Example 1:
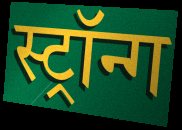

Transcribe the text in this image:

स्ट्रॉन्ग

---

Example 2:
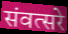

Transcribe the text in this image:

संवत्सरे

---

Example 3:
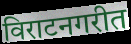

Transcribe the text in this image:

विराटनगरीत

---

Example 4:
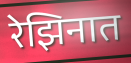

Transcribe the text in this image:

रेझिनात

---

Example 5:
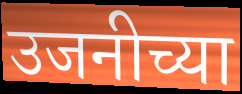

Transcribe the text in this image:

उजनीच्या